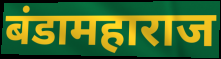
बंडामहाराज